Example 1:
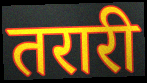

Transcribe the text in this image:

तरारी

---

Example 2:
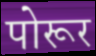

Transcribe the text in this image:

पोरूर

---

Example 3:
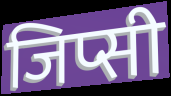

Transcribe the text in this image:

जिप्सी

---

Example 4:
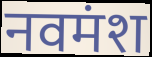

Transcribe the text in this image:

नवमंश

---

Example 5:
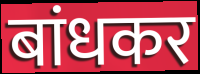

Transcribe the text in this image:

बांधकर